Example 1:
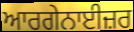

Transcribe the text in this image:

ਆਰਗੇਨਾਈਜ਼ਰ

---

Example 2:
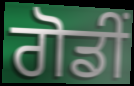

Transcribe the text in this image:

ਗੋਡੀਂ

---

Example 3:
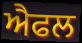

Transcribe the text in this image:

ਐਫਲ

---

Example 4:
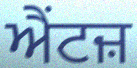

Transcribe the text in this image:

ਐਂਟਜ਼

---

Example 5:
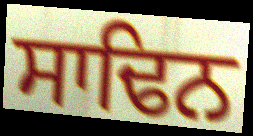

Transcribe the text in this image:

ਸਾਢਿਨ